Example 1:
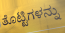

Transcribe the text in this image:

ತೊಟ್ಟಿಗಳನ್ನು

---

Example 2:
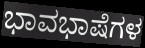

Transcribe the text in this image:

ಭಾವಭಾಷೆಗಳ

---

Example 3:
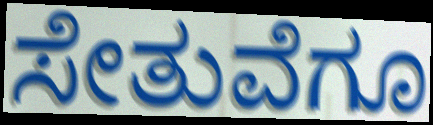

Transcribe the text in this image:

ಸೇತುವೆಗೂ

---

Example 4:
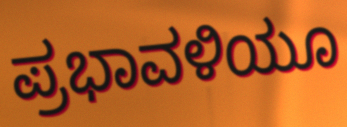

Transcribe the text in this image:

ಪ್ರಭಾವಳಿಯೂ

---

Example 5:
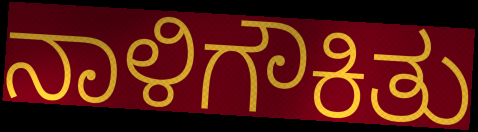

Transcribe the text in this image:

ನಾಳಿಗೌಕಿತು